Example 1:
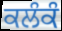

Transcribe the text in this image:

ਕਲੰਕੰ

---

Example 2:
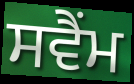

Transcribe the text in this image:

ਸਵੈਂਮ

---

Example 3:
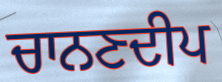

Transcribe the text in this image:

ਚਾਨਣਦੀਪ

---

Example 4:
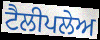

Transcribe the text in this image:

ਟੈਲੀਪਲੇਅ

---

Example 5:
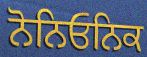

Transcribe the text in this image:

ਨੋਨਿਓਨਿਕ